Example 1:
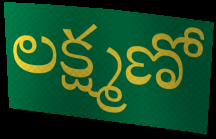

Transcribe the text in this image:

లక్ష్మణో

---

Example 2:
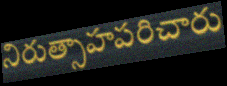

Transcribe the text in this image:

నిరుత్సాహపరిచారు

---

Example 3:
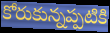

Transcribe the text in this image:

కోరుకున్నప్పటికి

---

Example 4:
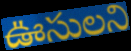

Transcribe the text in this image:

ఊసులని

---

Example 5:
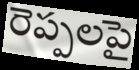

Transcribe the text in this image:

రెప్పలపై